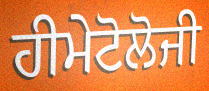
ਹੀਮੇਟੋਲੋਜੀ